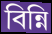
বিন্নি